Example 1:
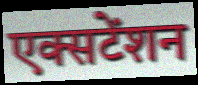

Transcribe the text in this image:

एक्सटेंशन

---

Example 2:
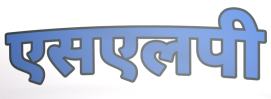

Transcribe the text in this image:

एसएलपी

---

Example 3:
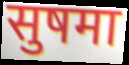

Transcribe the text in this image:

सुषमा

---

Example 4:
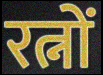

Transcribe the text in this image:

रत्नों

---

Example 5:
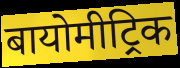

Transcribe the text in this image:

बायोमीट्रिक